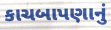
કાચબાપણાનું